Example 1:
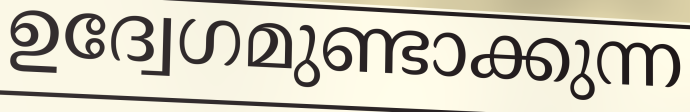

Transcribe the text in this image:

ഉദ്വേഗമുണ്ടാക്കുന്ന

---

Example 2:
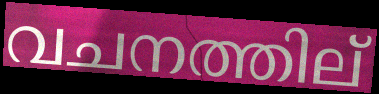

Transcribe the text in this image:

വചനത്തില്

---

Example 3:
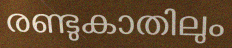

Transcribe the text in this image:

രണ്ടുകാതിലും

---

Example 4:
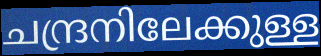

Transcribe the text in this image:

ചന്ദ്രനിലേക്കുള്ള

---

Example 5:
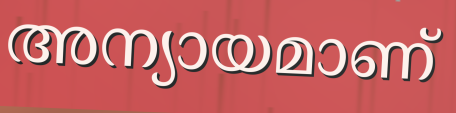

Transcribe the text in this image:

അന്യായമാണ്